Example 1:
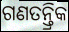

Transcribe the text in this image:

ଗଣତନ୍ତ୍ରିକ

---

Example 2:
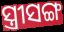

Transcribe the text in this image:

ସ୍ତ୍ରୀସଙ୍ଗ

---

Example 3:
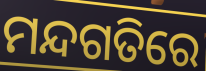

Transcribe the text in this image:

ମନ୍ଦଗତିରେ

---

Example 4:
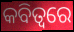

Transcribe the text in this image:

କବିତ୍ୱରେ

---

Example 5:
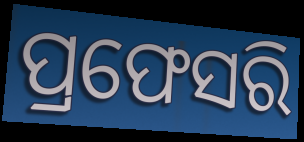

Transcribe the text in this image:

ପ୍ରଫେସରି